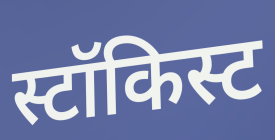
स्टॉकिस्ट